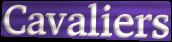
Cavaliers